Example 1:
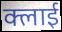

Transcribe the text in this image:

क्लाई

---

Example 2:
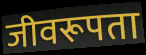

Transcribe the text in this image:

जीवरूपता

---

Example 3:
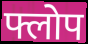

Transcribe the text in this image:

फ्लोप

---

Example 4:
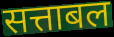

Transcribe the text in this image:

सत्ताबल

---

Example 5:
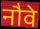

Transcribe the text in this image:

नौवे